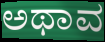
ಅಥಾವ